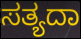
ಸತ್ಯದಾ